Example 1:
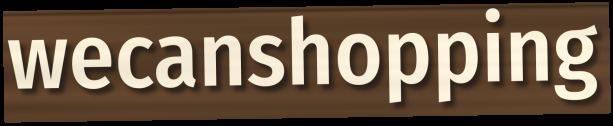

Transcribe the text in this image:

wecanshopping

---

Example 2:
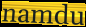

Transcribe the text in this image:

namdu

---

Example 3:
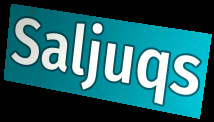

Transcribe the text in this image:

Saljuqs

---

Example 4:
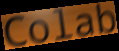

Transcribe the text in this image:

Colab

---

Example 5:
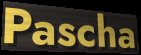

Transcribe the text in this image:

Pascha